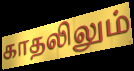
காதலிலும்